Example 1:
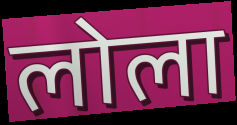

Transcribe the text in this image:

लोला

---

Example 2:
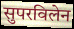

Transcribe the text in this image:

सुपरविलेन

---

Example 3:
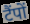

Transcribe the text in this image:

टैंपों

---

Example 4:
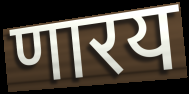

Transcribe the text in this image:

णारय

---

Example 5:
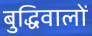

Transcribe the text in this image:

बुद्धिवालों